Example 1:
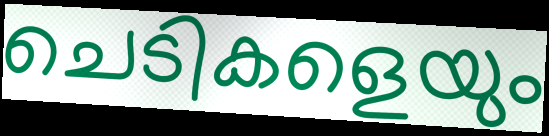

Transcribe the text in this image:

ചെടികളെയും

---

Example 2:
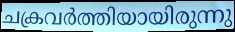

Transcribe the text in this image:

ചക്രവർത്തിയായിരുന്നു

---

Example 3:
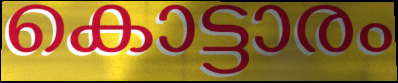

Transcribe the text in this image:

കൊട്ടാരം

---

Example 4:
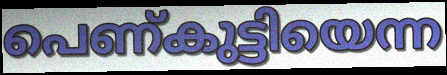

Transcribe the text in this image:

പെണ്കുട്ടിയെന്ന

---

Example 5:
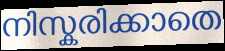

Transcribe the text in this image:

നിസ്കരിക്കാതെ